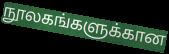
நூலகங்களுக்கான